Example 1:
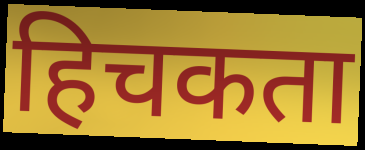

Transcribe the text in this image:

हिचकता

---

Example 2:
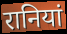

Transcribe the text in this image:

रानियां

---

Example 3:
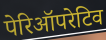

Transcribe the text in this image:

पेरिऑपरेटिव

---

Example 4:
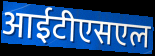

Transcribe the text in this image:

आईटीएसएल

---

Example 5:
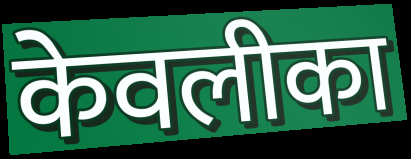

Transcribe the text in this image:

केवलीका